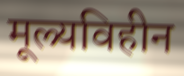
मूल्यविहीन